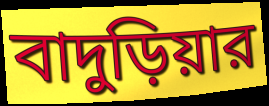
বাদুড়িয়ার